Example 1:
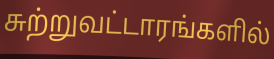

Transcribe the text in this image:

சுற்றுவட்டாரங்களில்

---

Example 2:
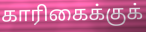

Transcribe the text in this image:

காரிகைக்குக்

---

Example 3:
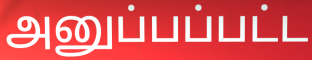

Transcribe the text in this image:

அனுப்பப்பட்ட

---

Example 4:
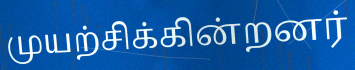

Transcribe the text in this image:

முயற்சிக்கின்றனர்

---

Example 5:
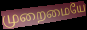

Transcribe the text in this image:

முறைமையே